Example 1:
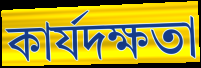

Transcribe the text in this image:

কাৰ্যদক্ষতা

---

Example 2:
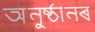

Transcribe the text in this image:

অনুষ্ঠানৰ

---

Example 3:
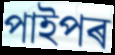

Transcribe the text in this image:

পাইপৰ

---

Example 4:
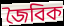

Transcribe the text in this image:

জৈবিক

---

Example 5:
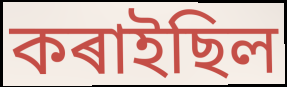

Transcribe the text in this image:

কৰাইছিল